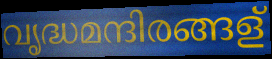
വൃദ്ധമന്ദിരങ്ങള്